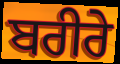
ਬਰੀਰੇ